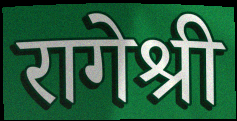
रागेश्री